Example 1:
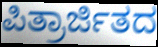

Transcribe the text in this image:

ಪಿತ್ರಾರ್ಜಿತದ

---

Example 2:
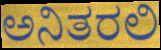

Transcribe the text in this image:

ಅನಿತರಲಿ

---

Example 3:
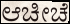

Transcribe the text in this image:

ಆಚೀಚೆ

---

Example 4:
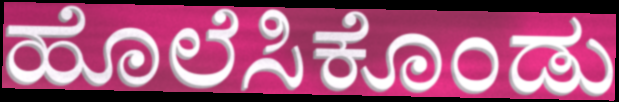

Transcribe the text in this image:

ಹೊಲೆಸಿಕೊಂಡು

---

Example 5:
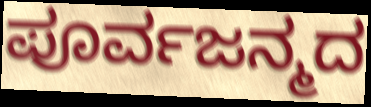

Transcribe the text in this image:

ಪೂರ್ವಜನ್ಮದ